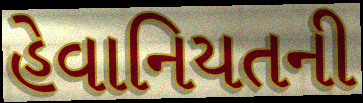
હેવાનિયતની